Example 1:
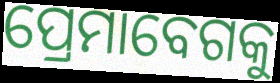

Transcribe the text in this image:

ପ୍ରେମାବେଗକୁ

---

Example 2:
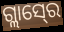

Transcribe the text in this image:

ଗ୍ଲାସ୍‍ରେ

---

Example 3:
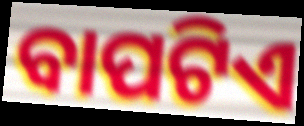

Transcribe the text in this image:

ବାପଟିଏ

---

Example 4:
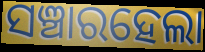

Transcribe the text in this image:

ସଞ୍ଚାରହେଲା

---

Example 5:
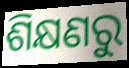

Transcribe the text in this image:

ଶିକ୍ଷଣରୁ